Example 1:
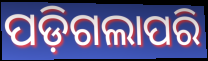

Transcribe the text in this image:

ପଡ଼ିଗଲାପରି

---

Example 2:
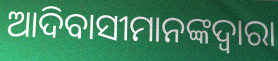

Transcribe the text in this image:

ଆଦିବାସୀମାନଙ୍କଦ୍ୱାରା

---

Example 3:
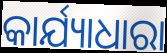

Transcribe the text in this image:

କାର୍ଯ୍ୟାଧାରା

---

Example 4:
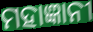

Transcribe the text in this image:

ମହାଜ୍ଞାନୀ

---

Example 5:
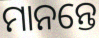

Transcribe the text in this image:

ମାନନ୍ତେ